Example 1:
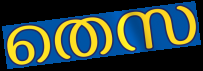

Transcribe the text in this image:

തെസ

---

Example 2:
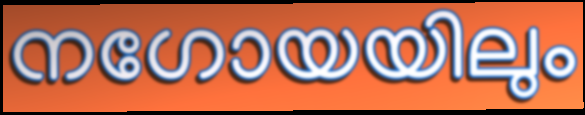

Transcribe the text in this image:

നഗോയയിലും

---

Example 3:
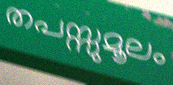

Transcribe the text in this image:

തപസ്സുമൂലം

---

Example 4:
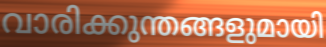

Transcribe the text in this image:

വാരിക്കുന്തങ്ങളുമായി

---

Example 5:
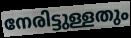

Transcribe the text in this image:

നേരിട്ടുള്ളതും